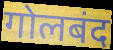
गोलबंद